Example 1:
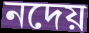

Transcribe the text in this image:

নদেয়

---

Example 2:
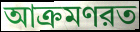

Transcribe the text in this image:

আক্রমণরত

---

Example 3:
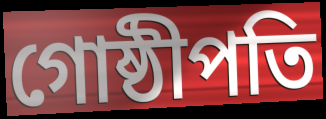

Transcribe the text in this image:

গোষ্ঠীপতি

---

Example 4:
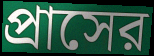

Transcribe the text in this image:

প্রাসের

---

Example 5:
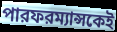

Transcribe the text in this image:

পারফরম্যান্সকেই